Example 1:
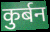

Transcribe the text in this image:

कुर्बन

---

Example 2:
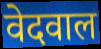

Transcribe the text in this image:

वेदवाल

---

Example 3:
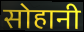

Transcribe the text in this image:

सोहानी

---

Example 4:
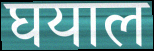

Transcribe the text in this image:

घयाल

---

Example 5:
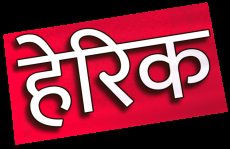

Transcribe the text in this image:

हेरिक